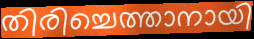
തിരിച്ചെത്താനായി